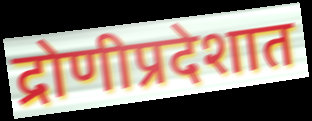
द्रोणीप्रदेशात